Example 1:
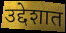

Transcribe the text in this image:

उद्देशात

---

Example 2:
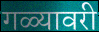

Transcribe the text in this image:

गळ्यावरी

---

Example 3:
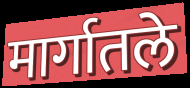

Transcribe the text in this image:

मार्गातले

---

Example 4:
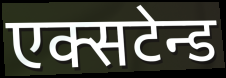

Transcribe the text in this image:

एक्सटेन्ड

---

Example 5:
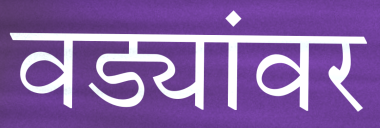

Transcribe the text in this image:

वड्यांवर